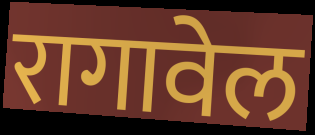
रागावेल